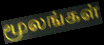
மூலங்கள்